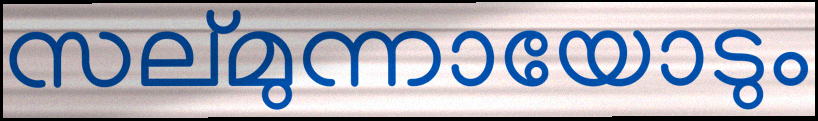
സല്മുന്നായോടും